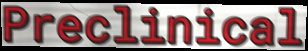
Preclinical